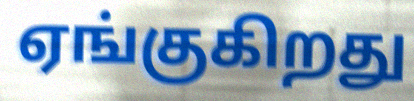
ஏங்குகிறது